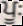
ਪੂਃ